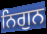
ਨਿਗੁਨ